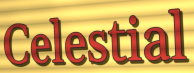
Celestial